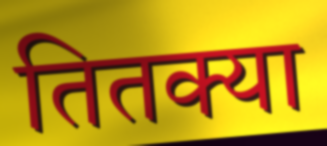
तितक्या